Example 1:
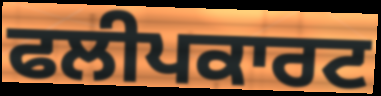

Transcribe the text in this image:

ਫਲੀਪਕਾਰਟ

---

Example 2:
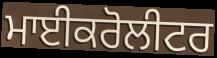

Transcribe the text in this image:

ਮਾਈਕਰੋਲੀਟਰ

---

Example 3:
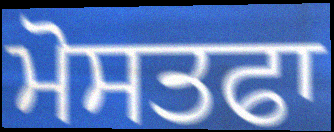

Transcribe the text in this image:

ਮੋਸਤਫਾ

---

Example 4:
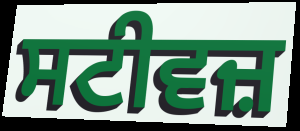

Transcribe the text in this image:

ਸਟੀਵਜ਼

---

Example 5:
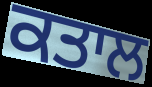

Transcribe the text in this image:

ਕਤਾਲ